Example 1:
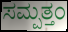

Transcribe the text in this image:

ಸಮ್ಪತ್ತಂ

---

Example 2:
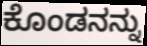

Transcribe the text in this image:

ಕೊಂಡನನ್ನು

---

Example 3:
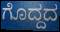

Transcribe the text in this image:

ಗೊದ್ದದ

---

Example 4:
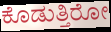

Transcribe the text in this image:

ಕೊಡುತ್ತಿರೋ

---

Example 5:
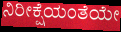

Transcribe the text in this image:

ನಿರೀಕ್ಷೆಯಂತೆಯೇ